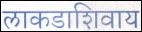
लाकडाशिवाय